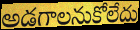
అడగాలనుకోలేదు